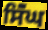
ਸਿੱੰਘ